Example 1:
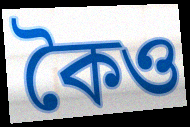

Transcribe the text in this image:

কৈও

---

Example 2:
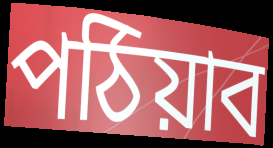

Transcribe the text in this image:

পঠিয়াব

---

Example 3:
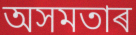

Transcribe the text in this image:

অসমতাৰ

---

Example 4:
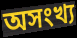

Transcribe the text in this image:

অসংখ্য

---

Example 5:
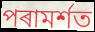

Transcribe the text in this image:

পৰামৰ্শত